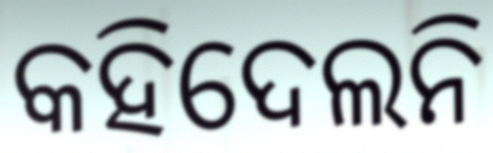
କହିଦେଲନି